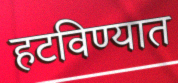
हटविण्यात